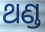
ଥଣ୍ଡ